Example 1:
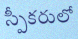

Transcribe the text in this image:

స్పీకరులో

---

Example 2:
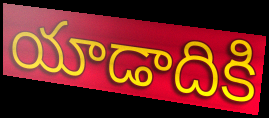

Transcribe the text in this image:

యాడాదికి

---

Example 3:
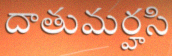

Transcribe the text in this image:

దాతుమర్హసి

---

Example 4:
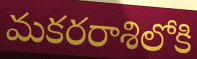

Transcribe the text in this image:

మకరరాశిలోకి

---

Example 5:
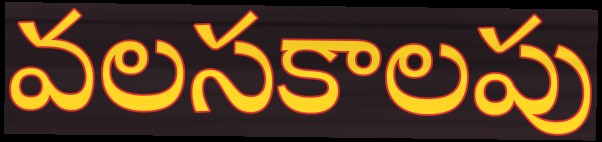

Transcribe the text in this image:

వలసకాలపు